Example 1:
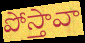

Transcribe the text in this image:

పోస్తావా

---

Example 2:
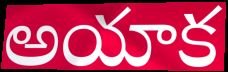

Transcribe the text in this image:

అయాక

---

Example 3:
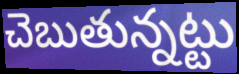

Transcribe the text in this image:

చెబుతున్నట్టు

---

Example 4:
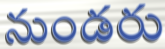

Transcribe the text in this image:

నుండరు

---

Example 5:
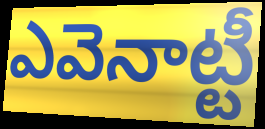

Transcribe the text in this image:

ఎవెనాట్టీ